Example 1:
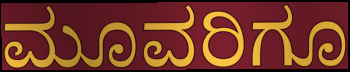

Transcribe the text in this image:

ಮೂವರಿಗೂ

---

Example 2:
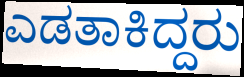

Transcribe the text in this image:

ಎಡತಾಕಿದ್ದರು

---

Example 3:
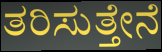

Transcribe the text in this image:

ತರಿಸುತ್ತೇನೆ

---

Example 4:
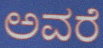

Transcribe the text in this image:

ಅವರೆ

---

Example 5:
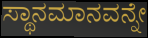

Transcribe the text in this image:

ಸ್ಥಾನಮಾನವನ್ನೇ